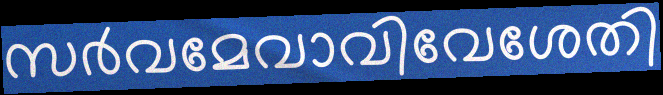
സർവമേവാവിവേശേതി